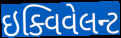
ઇક્વિવેલન્ટ